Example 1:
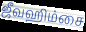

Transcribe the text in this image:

ஜீவஹிம்சை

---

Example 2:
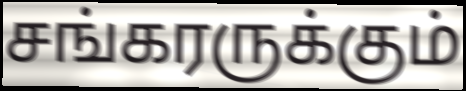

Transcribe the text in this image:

சங்கரருக்கும்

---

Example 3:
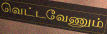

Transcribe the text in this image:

வெட்டவேணும்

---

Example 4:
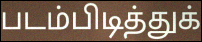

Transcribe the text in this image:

படம்பிடித்துக்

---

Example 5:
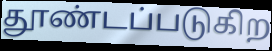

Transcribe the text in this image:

தூண்டப்படுகிற